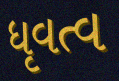
ધૃવત્વ